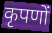
कृपणों